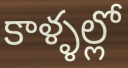
కాళ్ళల్లో